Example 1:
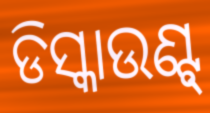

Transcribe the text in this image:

ଡିସ୍କାଉଣ୍ଟ୍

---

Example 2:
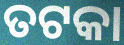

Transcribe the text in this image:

ତଟକା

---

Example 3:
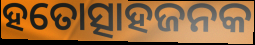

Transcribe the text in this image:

ହତୋତ୍ସାହଜନକ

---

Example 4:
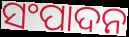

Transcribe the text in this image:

ସଂପାଦନ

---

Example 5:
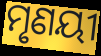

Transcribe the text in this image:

ମୃଣୟୀ